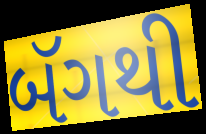
બૅગથી